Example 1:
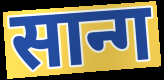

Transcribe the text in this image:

सान्ग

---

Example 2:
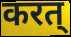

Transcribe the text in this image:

करत्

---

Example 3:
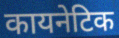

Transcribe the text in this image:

कायनेटिक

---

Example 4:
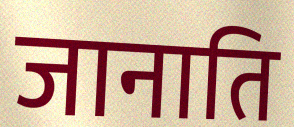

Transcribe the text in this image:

जानाति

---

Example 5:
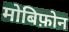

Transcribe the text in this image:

मोबिफ़ोन